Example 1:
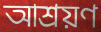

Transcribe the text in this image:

আশ্রয়ণ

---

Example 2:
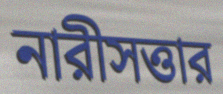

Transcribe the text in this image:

নারীসত্তার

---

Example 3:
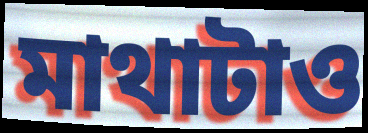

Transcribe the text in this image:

মাথাটাও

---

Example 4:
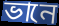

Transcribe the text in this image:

ভানে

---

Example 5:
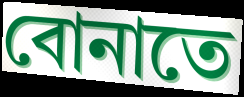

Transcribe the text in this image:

বোনাতে